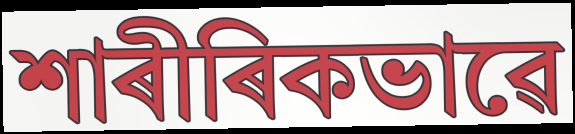
শাৰীৰিকভাৱে